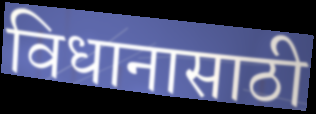
विधानासाठी